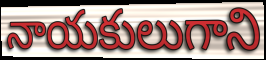
నాయకులుగాని